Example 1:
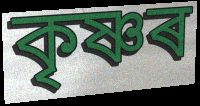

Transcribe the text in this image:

কৃষ্ণৰ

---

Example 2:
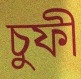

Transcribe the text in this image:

চুফী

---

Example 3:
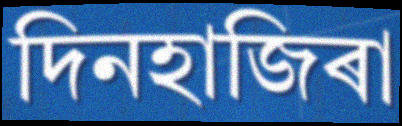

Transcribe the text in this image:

দিনহাজিৰা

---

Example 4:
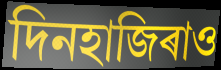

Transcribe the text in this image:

দিনহাজিৰাও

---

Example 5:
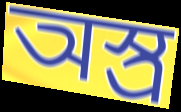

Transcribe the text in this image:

অস্ত্ৰ